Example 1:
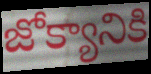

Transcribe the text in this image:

జోక్యానికి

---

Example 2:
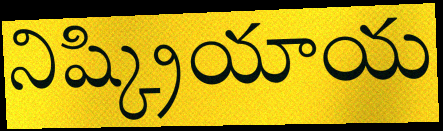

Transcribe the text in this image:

నిష్క్రియాయ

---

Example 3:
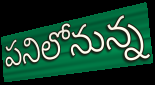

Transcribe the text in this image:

పనిలోనున్న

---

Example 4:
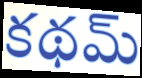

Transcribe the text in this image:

కథమ్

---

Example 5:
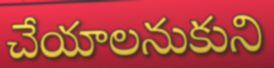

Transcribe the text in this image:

చేయాలనుకుని